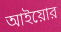
আইয়োর